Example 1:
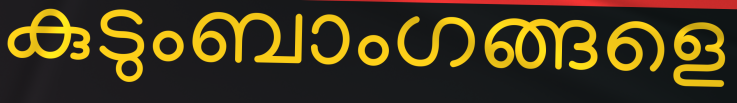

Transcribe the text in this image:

കുടുംബാംഗങ്ങളെ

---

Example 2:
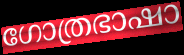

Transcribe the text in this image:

ഗോത്രഭാഷാ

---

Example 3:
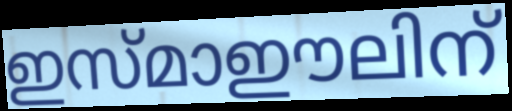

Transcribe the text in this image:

ഇസ്മാഈലിന്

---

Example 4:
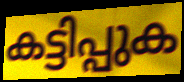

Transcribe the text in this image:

കട്ടിപ്പുക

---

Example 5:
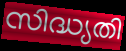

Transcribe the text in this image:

സിദ്ധ്യതി